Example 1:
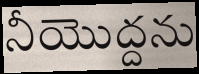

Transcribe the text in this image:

నీయొద్దను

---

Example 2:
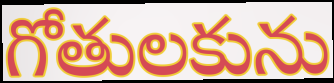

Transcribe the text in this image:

గోతులకును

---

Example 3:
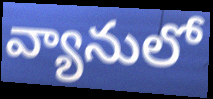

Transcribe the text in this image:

వ్యానులో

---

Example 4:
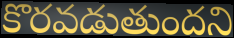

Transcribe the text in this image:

కొరవడుతుందని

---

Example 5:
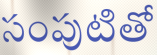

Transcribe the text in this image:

సంపుటితో